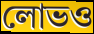
লোভও